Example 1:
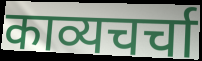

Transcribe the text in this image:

काव्यचर्चा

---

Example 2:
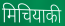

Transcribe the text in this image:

मिचियाकी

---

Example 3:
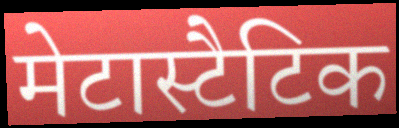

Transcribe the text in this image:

मेटास्टैटिक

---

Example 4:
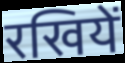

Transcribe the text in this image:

रखियें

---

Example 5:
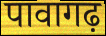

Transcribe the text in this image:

पावागढ़